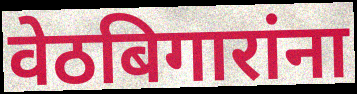
वेठबिगारांना